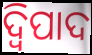
ଦ୍ୱିପାଦ